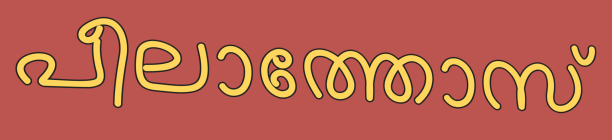
പീലാത്തോസ്